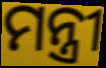
ମନ୍ତ୍ରୀ